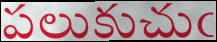
పలుకుచుఁ